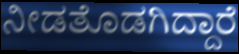
ನೀಡತೊಡಗಿದ್ದಾರೆ